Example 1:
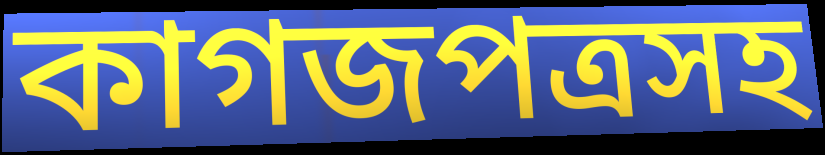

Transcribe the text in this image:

কাগজপত্রসহ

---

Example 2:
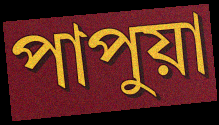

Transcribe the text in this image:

পাপুয়া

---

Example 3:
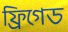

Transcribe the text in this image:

ফ্রিগেড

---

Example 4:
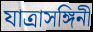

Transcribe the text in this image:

যাত্রাসঙ্গিনী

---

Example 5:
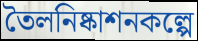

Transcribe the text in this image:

তৈলনিষ্কাশনকল্পে